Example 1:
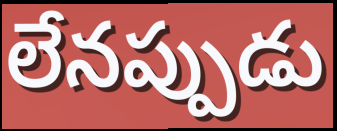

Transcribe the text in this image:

లేనప్పుడు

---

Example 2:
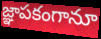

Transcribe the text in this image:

జ్ఞాపకంగానూ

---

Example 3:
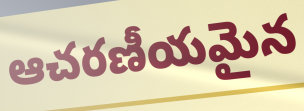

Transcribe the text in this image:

ఆచరణీయమైన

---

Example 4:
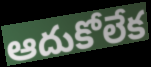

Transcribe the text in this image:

ఆదుకోలేక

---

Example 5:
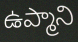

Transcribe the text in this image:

ఉప్మాని